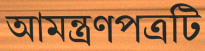
আমন্ত্রণপত্রটি